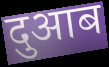
दुआब